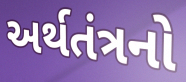
અર્થતંત્રનો